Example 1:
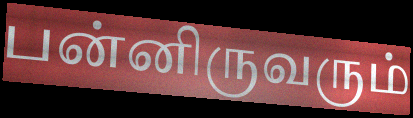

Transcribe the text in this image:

பன்னிருவரும்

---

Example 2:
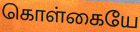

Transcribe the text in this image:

கொள்கையே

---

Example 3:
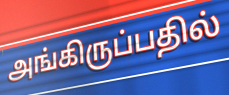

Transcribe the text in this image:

அங்கிருப்பதில்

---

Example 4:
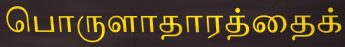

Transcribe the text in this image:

பொருளாதாரத்தைக்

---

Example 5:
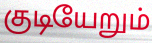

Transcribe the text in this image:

குடியேறும்